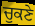
ਚੁਕਣੇ